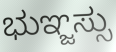
ಭುಞ್ಜಸ್ಸು